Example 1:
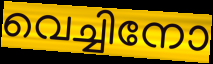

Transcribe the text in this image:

വെച്ചിനോ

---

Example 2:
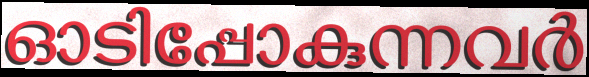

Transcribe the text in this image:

ഓടിപ്പോകുന്നവർ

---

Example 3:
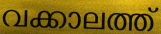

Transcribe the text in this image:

വക്കാലത്ത്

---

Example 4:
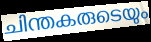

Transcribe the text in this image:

ചിന്തകരുടെയും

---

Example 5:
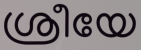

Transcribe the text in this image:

ശ്രീയേ